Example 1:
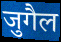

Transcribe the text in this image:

जुगैल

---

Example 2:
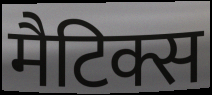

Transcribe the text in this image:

मैटिक्स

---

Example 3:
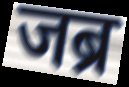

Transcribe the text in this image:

जब्र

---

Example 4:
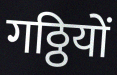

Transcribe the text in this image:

गठ्ठियों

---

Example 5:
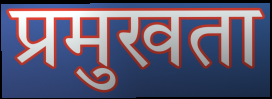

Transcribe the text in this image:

प्रमुखता